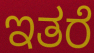
ಇತರೆ